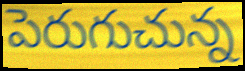
పెరుగుచున్న